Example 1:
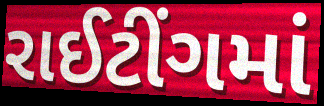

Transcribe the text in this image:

રાઈટીંગમાં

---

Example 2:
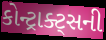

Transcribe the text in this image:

કોન્ટ્રાક્ટ્સની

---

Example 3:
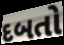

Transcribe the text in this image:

દબતો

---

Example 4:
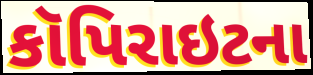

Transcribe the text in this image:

કૉપિરાઇટના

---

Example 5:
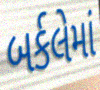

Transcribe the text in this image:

બર્કલેમાં